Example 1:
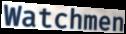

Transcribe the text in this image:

Watchmen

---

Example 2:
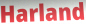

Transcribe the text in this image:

Harland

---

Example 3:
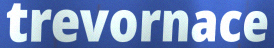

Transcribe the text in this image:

trevornace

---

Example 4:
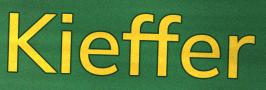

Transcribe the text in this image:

Kieffer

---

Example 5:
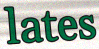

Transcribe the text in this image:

lates